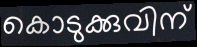
കൊടുക്കുവിന്